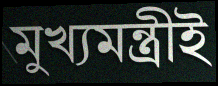
মুখ্যমন্ত্রীই